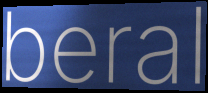
beral